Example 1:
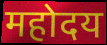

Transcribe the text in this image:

महोदय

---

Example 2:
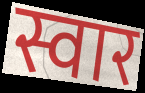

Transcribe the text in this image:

स्वार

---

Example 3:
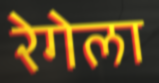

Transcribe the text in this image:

रेगेला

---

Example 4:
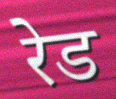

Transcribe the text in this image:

रेड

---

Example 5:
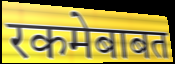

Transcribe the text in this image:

रकमेबाबत